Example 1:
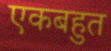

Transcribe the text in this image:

एकबहुत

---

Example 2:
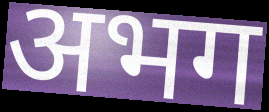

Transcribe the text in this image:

अभग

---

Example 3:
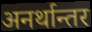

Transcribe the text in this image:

अनर्थान्तर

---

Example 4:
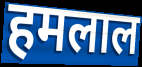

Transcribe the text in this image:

हमलाल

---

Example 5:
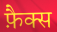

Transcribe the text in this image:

फ़ैक्स